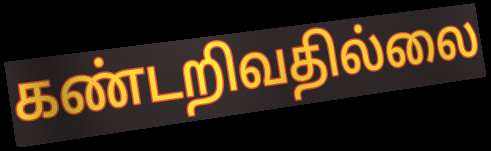
கண்டறிவதில்லை